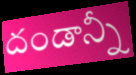
దండాన్నీ